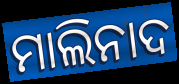
ମାଲିନାଦ